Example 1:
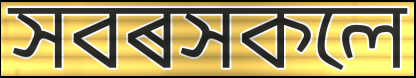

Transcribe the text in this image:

সবৰসকলে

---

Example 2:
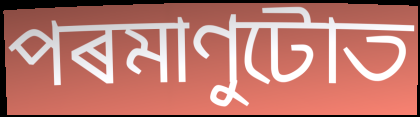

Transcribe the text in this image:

পৰমাণুটোত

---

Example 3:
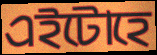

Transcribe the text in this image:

এইটোহে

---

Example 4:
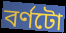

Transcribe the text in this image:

বৰ্ণটো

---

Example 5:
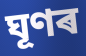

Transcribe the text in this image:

ঘূণৰ